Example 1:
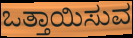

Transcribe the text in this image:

ಒತ್ತಾಯಿಸುವ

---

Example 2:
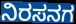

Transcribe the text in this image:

ನಿರಸನಗ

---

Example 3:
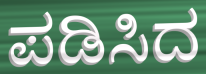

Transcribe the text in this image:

ಪಡಿಸಿದ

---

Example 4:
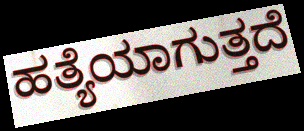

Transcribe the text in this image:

ಹತ್ಯೆಯಾಗುತ್ತದೆ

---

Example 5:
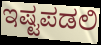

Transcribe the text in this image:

ಇಷ್ಟಪಡಲಿ